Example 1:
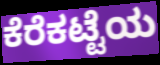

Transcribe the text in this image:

ಕೆರೆಕಟ್ಟೆಯ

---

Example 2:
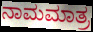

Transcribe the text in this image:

ನಾಮಮಾತ್ರ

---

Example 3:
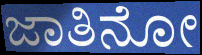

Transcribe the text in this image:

ಜಾತಿನೋ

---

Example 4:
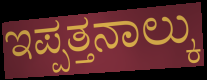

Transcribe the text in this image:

ಇಪ್ಪತ್ತನಾಲ್ಕು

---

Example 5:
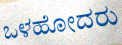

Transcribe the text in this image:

ಒಳಹೋದರು